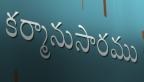
కర్మానుసారము